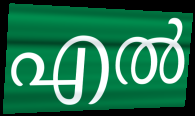
എൽ